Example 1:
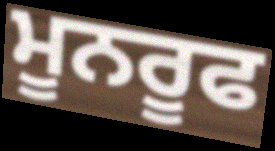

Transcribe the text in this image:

ਮੂਨਰੂਫ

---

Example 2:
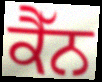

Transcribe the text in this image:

ਕੈੱਨ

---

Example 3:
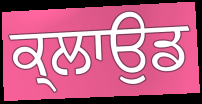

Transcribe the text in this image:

ਕ੍ਲਾਉਡ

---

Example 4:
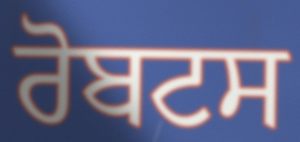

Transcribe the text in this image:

ਰੋਬਟਸ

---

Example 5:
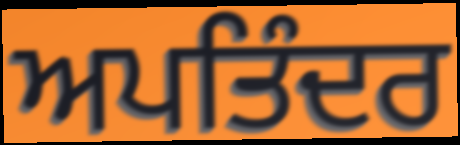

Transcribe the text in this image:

ਅਪਤਿੰਦਰ